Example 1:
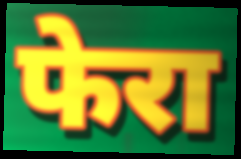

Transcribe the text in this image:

फेरा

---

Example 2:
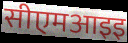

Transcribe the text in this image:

सीएमआइइ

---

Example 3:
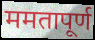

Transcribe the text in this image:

ममतापूर्ण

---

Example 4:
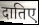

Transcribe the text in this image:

दातिए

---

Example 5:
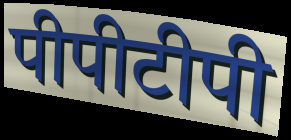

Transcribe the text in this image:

पीपीटीपी